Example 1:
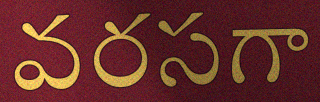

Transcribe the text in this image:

వరసగా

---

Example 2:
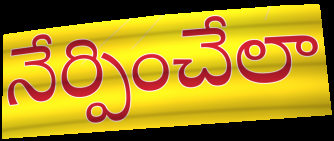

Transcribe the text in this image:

నేర్పించేలా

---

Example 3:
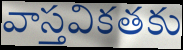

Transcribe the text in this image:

వాస్తవికతకు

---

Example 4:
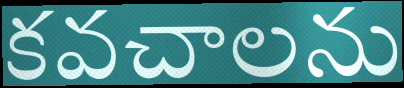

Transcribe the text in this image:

కవచాలను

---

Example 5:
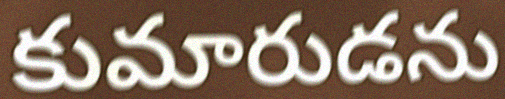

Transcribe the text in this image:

కుమారుడను